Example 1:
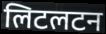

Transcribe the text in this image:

लिटलटन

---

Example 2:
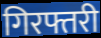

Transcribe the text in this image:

गिरफ्तरी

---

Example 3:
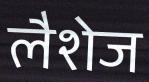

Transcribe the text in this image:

लैशेज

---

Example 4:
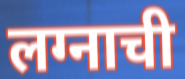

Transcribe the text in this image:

लग्नाची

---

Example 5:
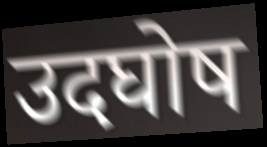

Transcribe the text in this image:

उदघोष